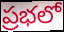
ప్రభలో